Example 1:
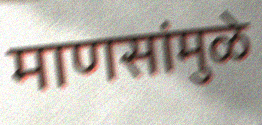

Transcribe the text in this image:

माणसांमुळे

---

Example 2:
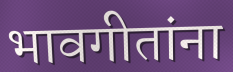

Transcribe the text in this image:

भावगीतांना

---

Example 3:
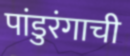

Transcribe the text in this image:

पांडुरंगाची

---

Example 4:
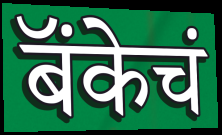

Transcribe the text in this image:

बॅंकेचं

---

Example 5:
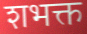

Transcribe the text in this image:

शभक्त